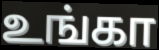
உங்கா